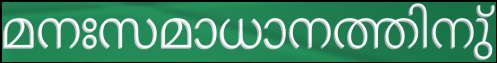
മനഃസമാധാനത്തിനു്